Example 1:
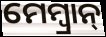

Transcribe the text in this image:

ମେମ୍ବ୍ରାନ୍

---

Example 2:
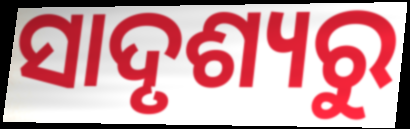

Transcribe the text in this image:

ସାଦୃଶ୍ୟରୁ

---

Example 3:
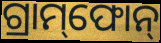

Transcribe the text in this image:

ଗ୍ରାମ୍‌ଫୋନ୍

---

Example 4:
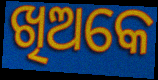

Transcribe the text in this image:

ଖିଅକେ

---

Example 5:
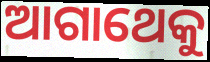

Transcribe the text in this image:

ଆଗାଥେକୁ